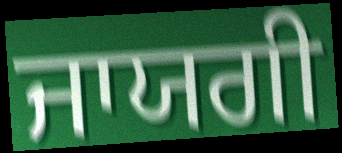
ਜਾਯਗੀ